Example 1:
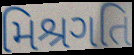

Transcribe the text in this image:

મિશ્રગતિ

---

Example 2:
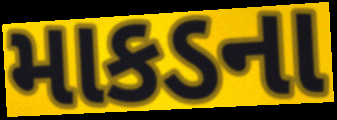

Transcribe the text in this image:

માકડના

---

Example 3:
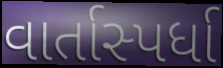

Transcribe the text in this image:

વાર્તાસ્પર્ધા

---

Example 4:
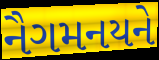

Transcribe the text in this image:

નૈગમનયને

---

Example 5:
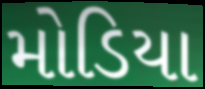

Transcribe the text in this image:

મોડિયા